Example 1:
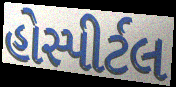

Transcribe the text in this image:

હોસ્પીર્ટલ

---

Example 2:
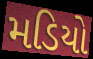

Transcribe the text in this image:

મડિયો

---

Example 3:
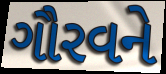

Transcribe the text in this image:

ગૌરવને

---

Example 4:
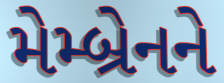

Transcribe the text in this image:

મેમ્બ્રેનને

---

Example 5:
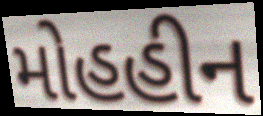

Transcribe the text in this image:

મોહહીન